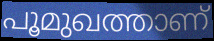
പൂമുഖത്താണ്